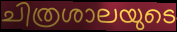
ചിത്രശാലയുടെ